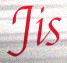
Jis